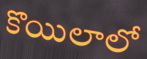
కొయిలాలో